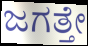
ಜಗತ್ತೇ